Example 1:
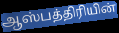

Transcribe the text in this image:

ஆஸ்பத்திரியின்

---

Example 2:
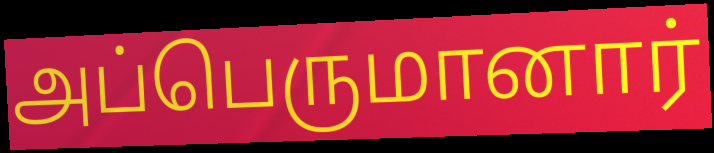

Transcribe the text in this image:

அப்பெருமானார்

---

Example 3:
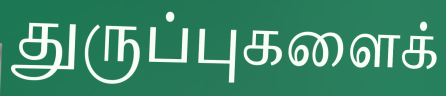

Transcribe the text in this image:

துருப்புகளைக்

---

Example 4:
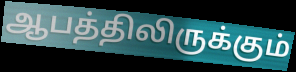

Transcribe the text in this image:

ஆபத்திலிருக்கும்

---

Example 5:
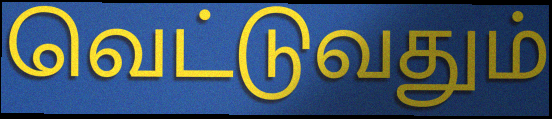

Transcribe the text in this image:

வெட்டுவதும்